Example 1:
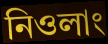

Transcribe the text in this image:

নিওলাং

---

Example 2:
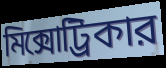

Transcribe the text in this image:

মিক্সোট্রিকার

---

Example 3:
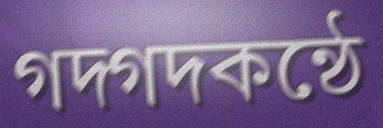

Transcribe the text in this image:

গদ্গদকন্ঠে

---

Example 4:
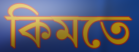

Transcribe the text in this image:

কিমতে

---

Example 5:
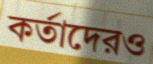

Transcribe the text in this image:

কর্তাদেরও